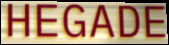
HEGADE